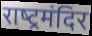
राष्ट्रमंदिर